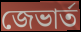
জেভার্ত